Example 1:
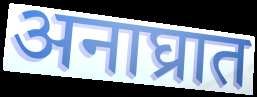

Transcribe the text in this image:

अनाघ्रात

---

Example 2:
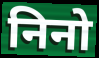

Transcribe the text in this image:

निनो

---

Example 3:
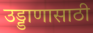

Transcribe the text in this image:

उड्डाणासाठी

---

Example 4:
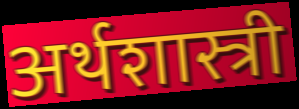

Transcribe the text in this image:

अर्थशास्त्री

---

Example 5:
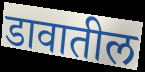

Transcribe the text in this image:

डावातील